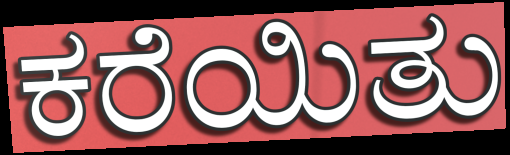
ಕರೆಯಿತು